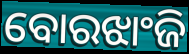
ବୋରଝାଂଜି